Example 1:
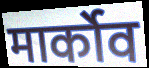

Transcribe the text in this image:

मार्कोव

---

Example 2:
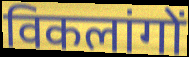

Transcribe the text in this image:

विकलांगों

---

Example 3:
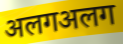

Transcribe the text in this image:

अलगअलग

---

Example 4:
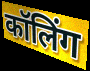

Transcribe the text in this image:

कॉलिंग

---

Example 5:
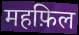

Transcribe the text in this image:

महफ़िल